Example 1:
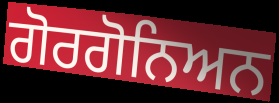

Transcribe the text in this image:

ਗੋਰਗੋਨਿਅਨ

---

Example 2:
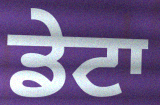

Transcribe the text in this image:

ਡੇਟਾ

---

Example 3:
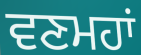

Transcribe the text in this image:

ਵਣਮਹਾਂ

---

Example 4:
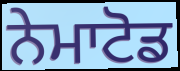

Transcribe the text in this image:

ਨੇਮਾਟੋਡ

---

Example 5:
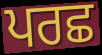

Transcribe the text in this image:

ਪਰਛ